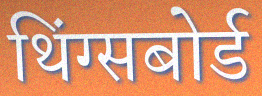
थिंग्सबोर्ड